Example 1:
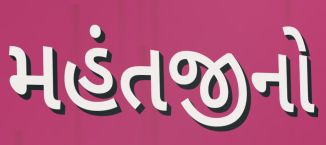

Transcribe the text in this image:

મહંતજીનો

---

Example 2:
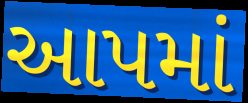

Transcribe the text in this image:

આપમાં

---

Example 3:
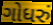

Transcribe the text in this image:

ગોધરું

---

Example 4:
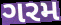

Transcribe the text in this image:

ગરમ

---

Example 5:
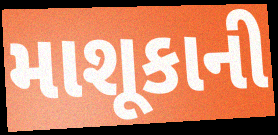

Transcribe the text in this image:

માશૂકાની